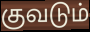
குவடும்